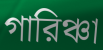
গারিঞ্চা